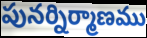
పునర్నిర్మాణము